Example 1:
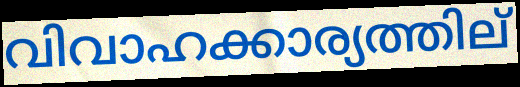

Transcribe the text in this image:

വിവാഹക്കാര്യത്തില്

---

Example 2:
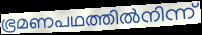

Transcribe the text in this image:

ഭ്രമണപഥത്തിൽനിന്ന്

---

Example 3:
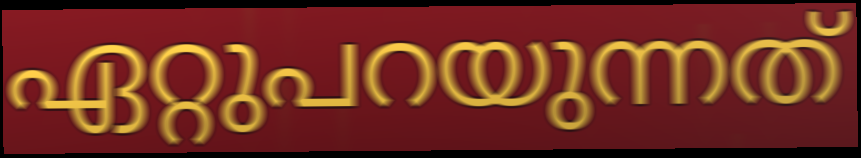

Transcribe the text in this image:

ഏറ്റുപറയുന്നത്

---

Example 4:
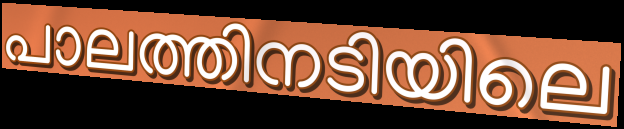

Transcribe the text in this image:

പാലത്തിനടിയിലെ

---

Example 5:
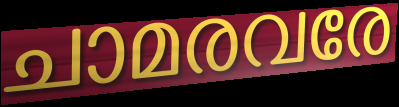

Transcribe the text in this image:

ചാമരവരേ